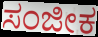
ಸಂಜೀಕ